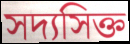
সদ্যসিক্ত